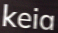
keia